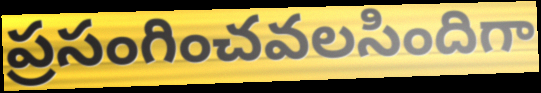
ప్రసంగించవలసిందిగా